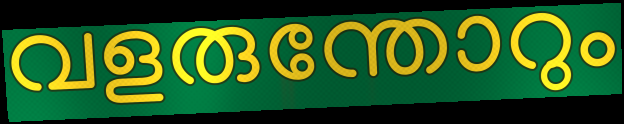
വളരുന്തോറും